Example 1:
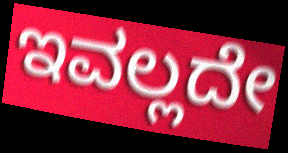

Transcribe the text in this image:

ಇವಲ್ಲದೇ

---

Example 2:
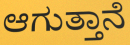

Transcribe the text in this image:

ಆಗುತ್ತಾನೆ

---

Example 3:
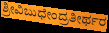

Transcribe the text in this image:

ಶ್ರೀವಿಬುಧೇಂದ್ರತೀರ್ಥರ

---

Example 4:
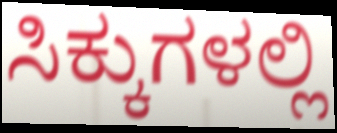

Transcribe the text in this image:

ಸಿಕ್ಕುಗಳಲ್ಲಿ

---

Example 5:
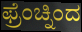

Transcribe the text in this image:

ಫ್ರೆಂಚ್ನಿಂದ